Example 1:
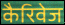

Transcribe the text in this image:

कैरिवेज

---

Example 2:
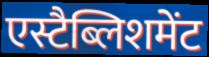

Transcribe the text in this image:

एस्टैब्लिशमेंट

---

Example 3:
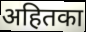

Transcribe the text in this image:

अहितका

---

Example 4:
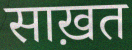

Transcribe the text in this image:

साख़त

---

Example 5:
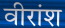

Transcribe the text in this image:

वीरांश